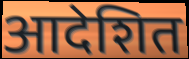
आदेशित